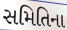
સમિતિના